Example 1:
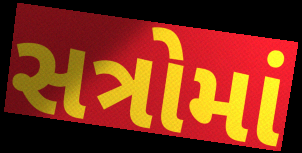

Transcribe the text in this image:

સત્રોમાં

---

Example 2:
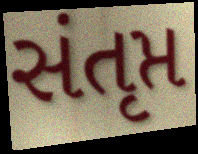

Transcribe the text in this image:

સંતૃપ્ત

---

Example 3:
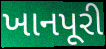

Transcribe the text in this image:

ખાનપૂરી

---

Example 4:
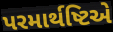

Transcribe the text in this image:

પરમાર્થષ્ટિએ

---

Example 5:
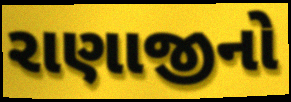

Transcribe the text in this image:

રાણાજીનો